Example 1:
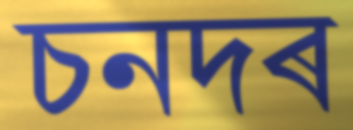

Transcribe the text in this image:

চনদৰ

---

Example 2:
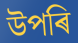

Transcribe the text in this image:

উপৰি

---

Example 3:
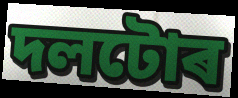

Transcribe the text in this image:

দলটোৰ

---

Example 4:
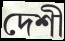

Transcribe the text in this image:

দেশী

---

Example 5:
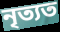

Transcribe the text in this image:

নৃত্যত